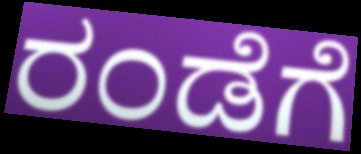
ರಂಡೆಗೆ